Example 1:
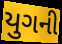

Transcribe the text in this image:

યુગની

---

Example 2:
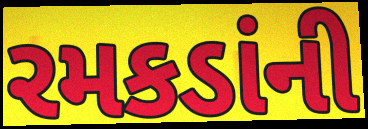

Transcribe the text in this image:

રમકડાંની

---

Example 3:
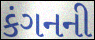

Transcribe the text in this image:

કંગનની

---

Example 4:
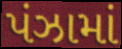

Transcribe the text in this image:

પંઝામાં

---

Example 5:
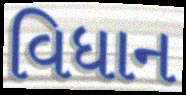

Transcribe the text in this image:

વિધાન